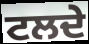
ਟਲਦੇ